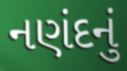
નણંદનું